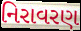
નિરાવરણ